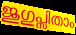
ജുഗുപ്സിതാം